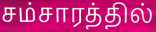
சம்சாரத்தில்